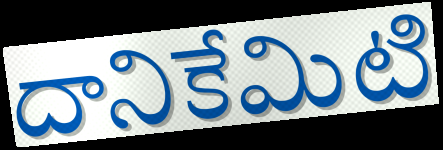
దానికేమిటి